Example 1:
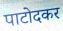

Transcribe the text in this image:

पाटोदकर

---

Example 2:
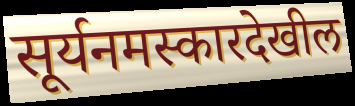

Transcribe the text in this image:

सूर्यनमस्कारदेखील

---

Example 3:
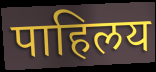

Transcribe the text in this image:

पाहिलय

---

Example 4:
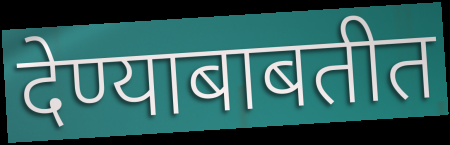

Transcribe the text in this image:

देण्याबाबतीत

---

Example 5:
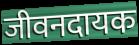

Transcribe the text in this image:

जीवनदायक